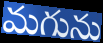
మగును